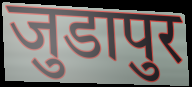
जुडापुर